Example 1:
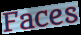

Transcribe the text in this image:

Faces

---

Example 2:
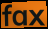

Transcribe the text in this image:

fax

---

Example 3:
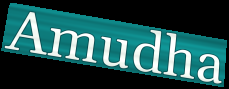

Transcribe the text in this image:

Amudha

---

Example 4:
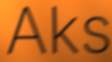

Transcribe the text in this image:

Aks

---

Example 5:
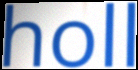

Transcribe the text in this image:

holl